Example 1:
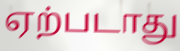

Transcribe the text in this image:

ஏற்படாது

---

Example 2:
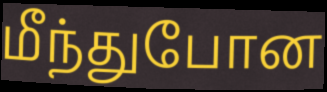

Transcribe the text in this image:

மீந்துபோன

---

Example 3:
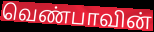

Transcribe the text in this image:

வெண்பாவின்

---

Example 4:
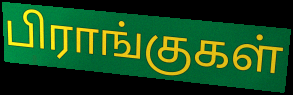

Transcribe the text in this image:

பிராங்குகள்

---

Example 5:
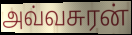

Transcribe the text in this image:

அவ்வசுரன்